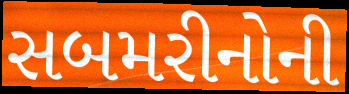
સબમરીનોની